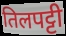
तिलपट्टी